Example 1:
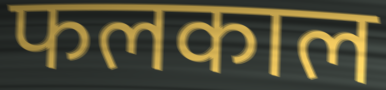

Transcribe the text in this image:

फलकाल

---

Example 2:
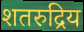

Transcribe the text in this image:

शतरुद्रिय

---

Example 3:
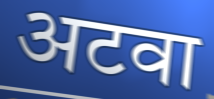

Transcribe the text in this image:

अटवा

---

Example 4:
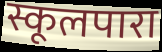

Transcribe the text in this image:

स्कूलपारा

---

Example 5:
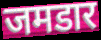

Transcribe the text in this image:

जमडार